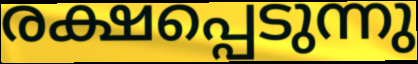
രക്ഷപ്പെടുന്നു